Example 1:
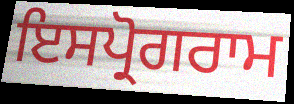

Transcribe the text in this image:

ਇਸਪ੍ਰੋਗਰਾਮ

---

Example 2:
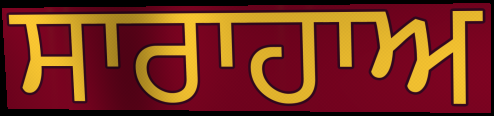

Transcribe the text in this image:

ਸਾਰਾਹਾਅ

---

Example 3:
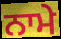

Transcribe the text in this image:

ਨਾਮੇ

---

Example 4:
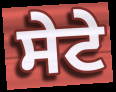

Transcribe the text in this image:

ਸੇਟੇ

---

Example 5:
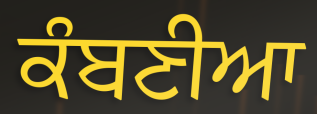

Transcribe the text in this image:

ਕੰਬਣੀਆ